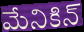
మేనికిన్